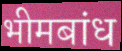
भीमबांध